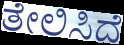
ತೇಲಿಸಿದೆ